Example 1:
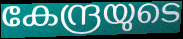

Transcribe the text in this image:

കേന്ദ്രയുടെ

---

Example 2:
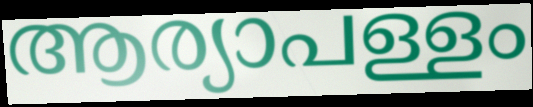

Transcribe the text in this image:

ആര്യാപള്ളം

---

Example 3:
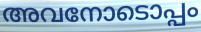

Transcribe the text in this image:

അവനോടൊപ്പം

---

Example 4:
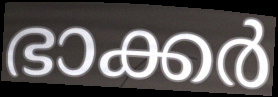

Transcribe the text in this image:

ഭാക്കർ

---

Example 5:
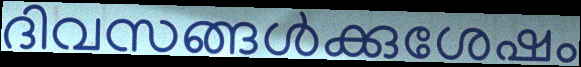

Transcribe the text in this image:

ദിവസങ്ങൾക്കുശേഷം